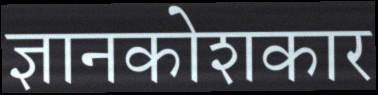
ज्ञानकोशकार